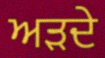
ਅੜਦੇ